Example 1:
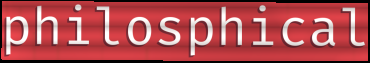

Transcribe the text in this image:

philosphical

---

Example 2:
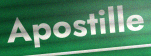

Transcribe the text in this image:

Apostille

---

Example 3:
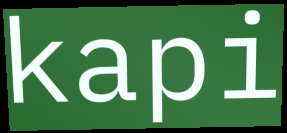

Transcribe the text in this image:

kapi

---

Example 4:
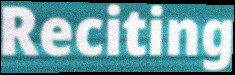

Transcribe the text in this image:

Reciting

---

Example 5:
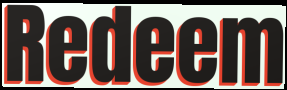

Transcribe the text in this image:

Redeem